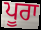
ਪੂਰਾ